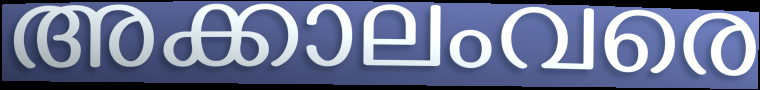
അക്കാലംവരെ